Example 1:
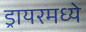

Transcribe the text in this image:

ड्रायरमध्ये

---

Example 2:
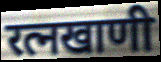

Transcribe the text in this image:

रत्नखाणी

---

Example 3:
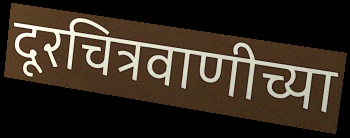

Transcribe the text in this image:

दूरचित्रवाणीच्या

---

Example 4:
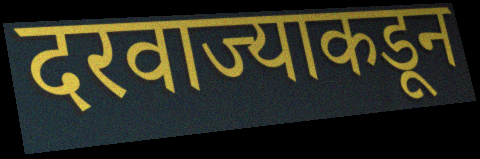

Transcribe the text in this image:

दरवाज्याकडून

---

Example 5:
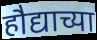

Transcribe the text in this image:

हौद्याच्या